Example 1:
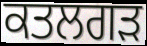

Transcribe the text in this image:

ਕਤਲਗੜ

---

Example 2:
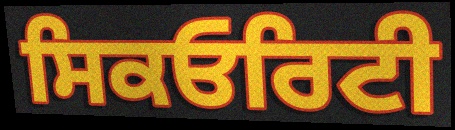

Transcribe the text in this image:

ਸਿਕਓਰਿਟੀ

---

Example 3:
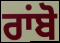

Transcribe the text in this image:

ਰਾਂਬੋ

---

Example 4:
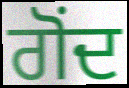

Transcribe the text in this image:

ਗੋਂਦ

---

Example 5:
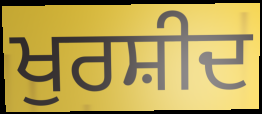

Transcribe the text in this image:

ਖੁਰਸ਼ੀਦ